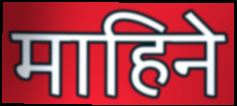
माहिने